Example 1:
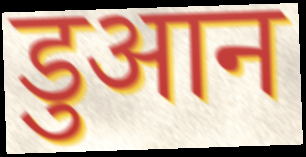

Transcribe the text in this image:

डुआन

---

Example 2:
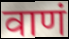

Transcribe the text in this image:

वाणं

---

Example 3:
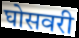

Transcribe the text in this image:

घोसवरी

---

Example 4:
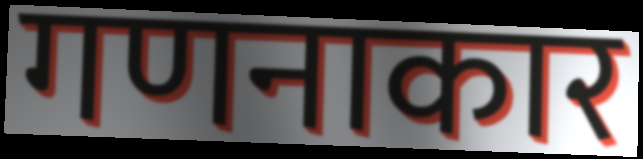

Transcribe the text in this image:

गणनाकार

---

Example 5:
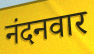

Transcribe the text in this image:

नंदनवार